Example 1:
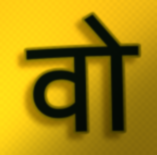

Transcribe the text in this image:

वो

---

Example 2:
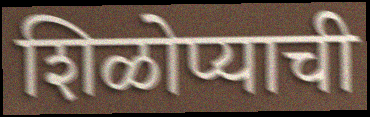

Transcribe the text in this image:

शिळोप्याची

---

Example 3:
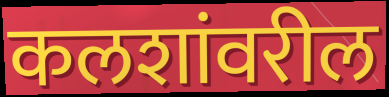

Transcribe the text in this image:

कलशांवरील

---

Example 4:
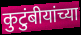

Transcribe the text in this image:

कुटुंबीयांच्या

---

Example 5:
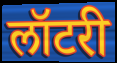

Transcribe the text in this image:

लॉटरी